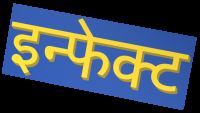
इन्फेक्ट